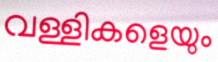
വള്ളികളെയും